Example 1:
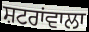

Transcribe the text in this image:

ਸ਼ਟਰਾਂਵਾਲਾ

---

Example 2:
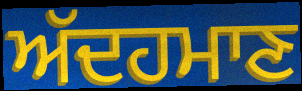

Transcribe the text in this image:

ਅੱਦਹਮਾਣ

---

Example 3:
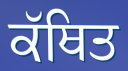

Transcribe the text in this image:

ਕੱਥਿਤ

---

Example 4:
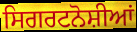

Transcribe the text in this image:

ਸਿਗਰਟਨੋਸ਼ੀਆਂ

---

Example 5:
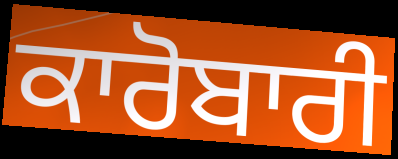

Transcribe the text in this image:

ਕਾਰੋਬਾਰੀ